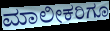
ಮಾಲೀಕರಿಗೂ